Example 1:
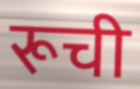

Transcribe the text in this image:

रूची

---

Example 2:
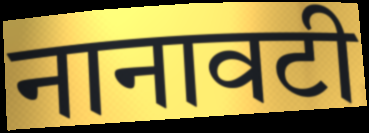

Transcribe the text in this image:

नानावटी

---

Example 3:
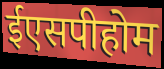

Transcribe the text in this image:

ईएसपीहोम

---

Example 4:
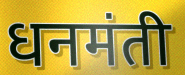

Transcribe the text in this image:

धनमंती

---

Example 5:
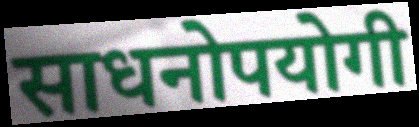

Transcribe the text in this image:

साधनोपयोगी